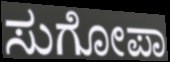
ಸುಗೋಪಾ